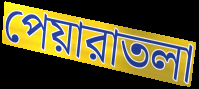
পেয়ারাতলা